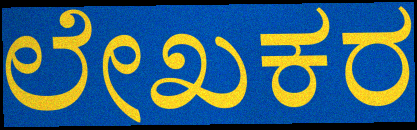
ಲೇಖಕರ